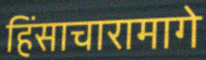
हिंसाचारामागे